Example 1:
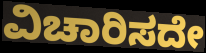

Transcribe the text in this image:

ವಿಚಾರಿಸದೇ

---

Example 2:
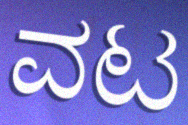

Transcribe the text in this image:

ವಟ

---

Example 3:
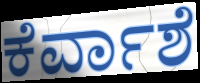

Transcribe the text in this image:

ಕೆರ್ವಾಶೆ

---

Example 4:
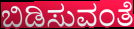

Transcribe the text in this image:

ಬಿಡಿಸುವಂತೆ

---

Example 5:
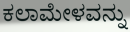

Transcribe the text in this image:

ಕಲಾಮೇಳವನ್ನು